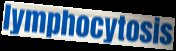
lymphocytosis